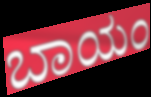
ಬಾಯಂ